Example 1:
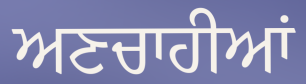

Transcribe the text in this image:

ਅਣਚਾਹੀਆਂ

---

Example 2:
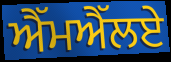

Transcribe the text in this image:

ਐੱਮਐੱਲਏ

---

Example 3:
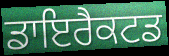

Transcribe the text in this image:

ਡਾਇਰੈਕਟਡ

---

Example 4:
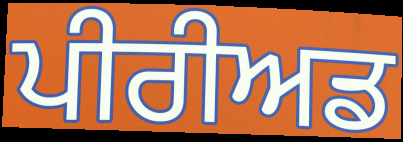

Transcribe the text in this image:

ਪੀਰੀਅਡ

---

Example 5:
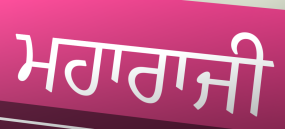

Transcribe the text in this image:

ਮਹਾਰਾਜੀ